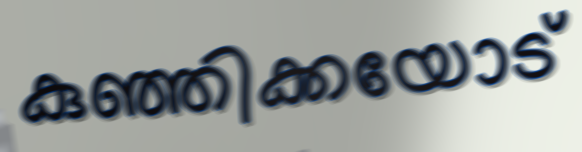
കുഞ്ഞിക്കയോട്